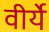
वीर्ये